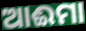
ଆଈମା